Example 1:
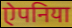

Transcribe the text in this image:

ऐपनिया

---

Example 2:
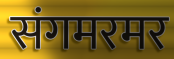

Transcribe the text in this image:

संगमरमर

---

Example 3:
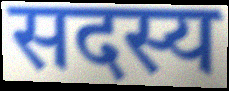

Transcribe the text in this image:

सदस्‍य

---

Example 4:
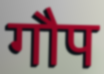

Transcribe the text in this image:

गौप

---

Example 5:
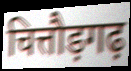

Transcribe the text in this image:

चित्तौड़गढ़